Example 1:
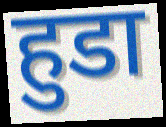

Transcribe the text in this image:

हुडा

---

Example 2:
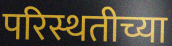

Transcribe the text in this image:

परिस्थतीच्या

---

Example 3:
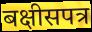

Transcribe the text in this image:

बक्षीसपत्र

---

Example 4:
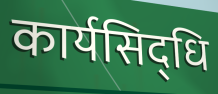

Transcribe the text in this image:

कार्यसिद्धि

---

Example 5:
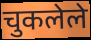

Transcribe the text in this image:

चुकलेले